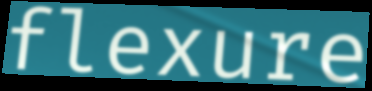
flexure